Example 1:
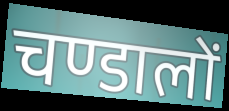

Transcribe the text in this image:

चण्डालों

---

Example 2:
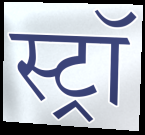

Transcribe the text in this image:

स्ट्रॉ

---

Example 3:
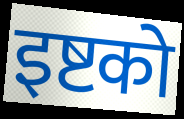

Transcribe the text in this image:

इष्टको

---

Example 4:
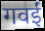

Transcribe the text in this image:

गवईं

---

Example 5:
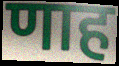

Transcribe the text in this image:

णाह